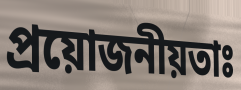
প্ৰয়োজনীয়তাঃ